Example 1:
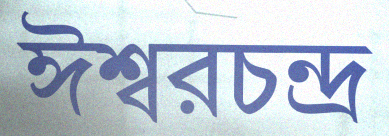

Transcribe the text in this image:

ঈশ্বরচন্দ্র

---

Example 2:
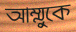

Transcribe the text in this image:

আম্মুকে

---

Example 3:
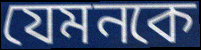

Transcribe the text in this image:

যেমনকে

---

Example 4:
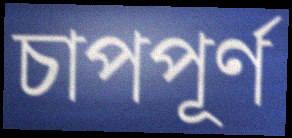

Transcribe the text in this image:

চাপপূর্ণ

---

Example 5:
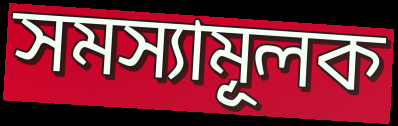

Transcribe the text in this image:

সমস্যামূলক